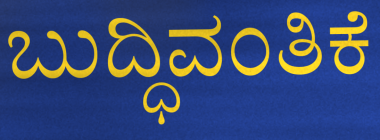
ಬುದ್ಧಿವಂತಿಕೆ